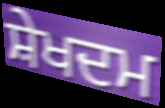
ਸ਼ੇਖਦਮ